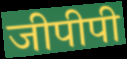
जीपीपी